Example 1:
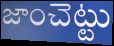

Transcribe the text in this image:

జాంచెట్టు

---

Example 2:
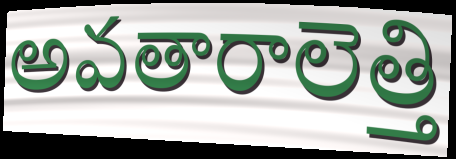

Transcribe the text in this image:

అవతారాలెత్తి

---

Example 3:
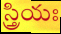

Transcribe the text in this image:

స్త్రియః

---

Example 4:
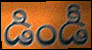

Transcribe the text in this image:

డిండీ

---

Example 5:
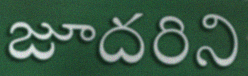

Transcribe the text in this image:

జూదరిని